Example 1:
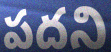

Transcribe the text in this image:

పదని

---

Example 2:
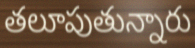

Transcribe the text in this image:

తలూపుతున్నారు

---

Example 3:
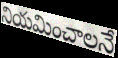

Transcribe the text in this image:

నియమించాలనే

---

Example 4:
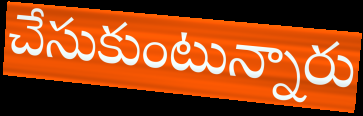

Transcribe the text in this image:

చేసుకుంటున్నారు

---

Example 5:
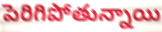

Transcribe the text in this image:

పెరిగిపోతున్నాయి